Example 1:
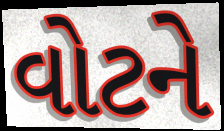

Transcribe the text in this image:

વોટને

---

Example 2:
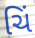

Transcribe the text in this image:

ચિં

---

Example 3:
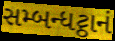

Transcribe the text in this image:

સમ્બન્ધટ્ઠાનં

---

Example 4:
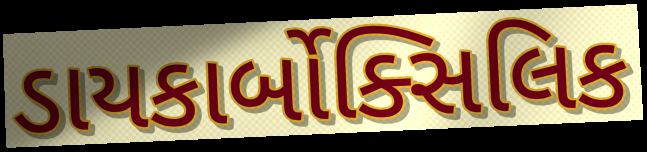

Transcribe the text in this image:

ડાયકાર્બોક્સિલિક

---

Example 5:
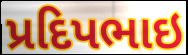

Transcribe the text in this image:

પ્રદિપભાઇ